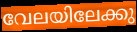
വേലയിലേക്കു